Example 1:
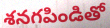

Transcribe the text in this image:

శనగపిండితో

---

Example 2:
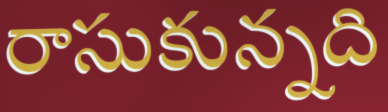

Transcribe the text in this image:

రాసుకున్నది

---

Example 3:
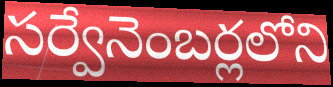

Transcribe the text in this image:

సర్వేనెంబర్లలోని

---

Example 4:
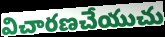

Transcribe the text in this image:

విచారణచేయుచు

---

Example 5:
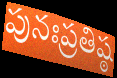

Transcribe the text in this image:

పునఃప్రతిష్ఠ